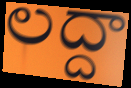
లద్దా